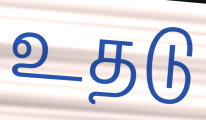
உதடு